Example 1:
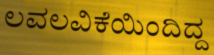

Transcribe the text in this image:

ಲವಲವಿಕೆಯಿಂದಿದ್ದ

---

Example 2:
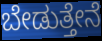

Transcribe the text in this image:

ಬೇಡುತ್ತೇನೆ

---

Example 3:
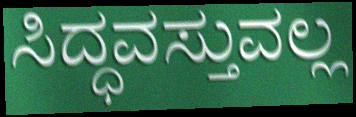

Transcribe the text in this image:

ಸಿದ್ಧವಸ್ತುವಲ್ಲ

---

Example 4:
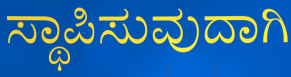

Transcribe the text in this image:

ಸ್ಥಾಪಿಸುವುದಾಗಿ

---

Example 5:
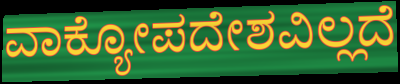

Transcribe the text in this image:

ವಾಕ್ಯೋಪದೇಶವಿಲ್ಲದೆ